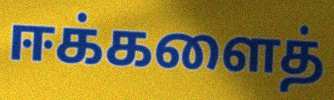
ஈக்களைத்